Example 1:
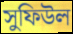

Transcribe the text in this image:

সুফিউল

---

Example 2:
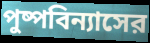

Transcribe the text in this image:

পুষ্পবিন্যাসের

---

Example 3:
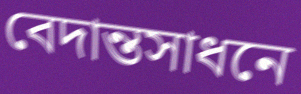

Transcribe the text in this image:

বেদান্তসাধনে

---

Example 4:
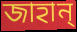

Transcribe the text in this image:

জাহান্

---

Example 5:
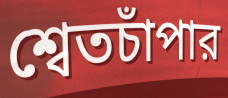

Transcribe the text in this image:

শ্বেতচাঁপার